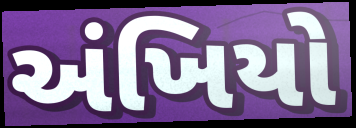
અંખિયો